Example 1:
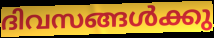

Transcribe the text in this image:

ദിവസങ്ങൾക്കു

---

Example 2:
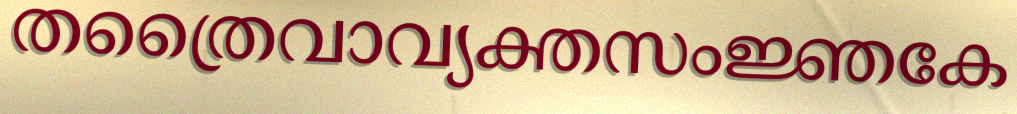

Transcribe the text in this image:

തത്രൈവാവ്യക്തസംജ്ഞകേ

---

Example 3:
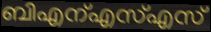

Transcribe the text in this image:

ബിഎന്എസ്എസ്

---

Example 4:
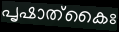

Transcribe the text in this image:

പൃഷാത്കൈഃ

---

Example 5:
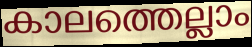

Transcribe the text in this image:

കാലത്തെല്ലാം